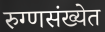
रुग्णसंख्येत